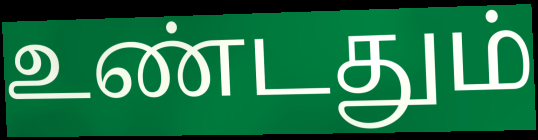
உண்டதும்